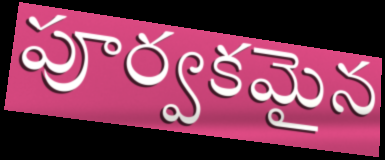
పూర్వకమైన